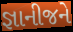
જ્ઞાનીજને